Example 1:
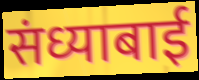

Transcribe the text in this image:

संध्याबाई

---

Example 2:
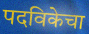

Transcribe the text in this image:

पदविकेचा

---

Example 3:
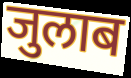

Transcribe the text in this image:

जुलाब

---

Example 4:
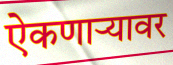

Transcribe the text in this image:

ऐकणाऱ्यावर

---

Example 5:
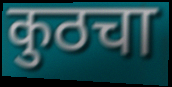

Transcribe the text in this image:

कुठचा